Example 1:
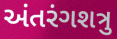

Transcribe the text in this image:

અંતરંગશત્રુ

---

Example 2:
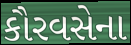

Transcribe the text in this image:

કૌરવસેના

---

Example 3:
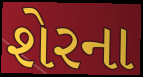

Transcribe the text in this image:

શેરના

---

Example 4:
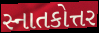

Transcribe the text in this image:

સ્નાતકોત્તર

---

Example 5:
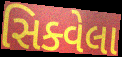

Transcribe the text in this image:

સિક્વેલા